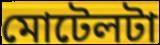
মোটেলটা